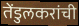
तेंडुलकरांची